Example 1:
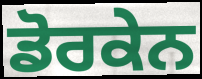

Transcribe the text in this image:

ਡੋਰਕੇਨ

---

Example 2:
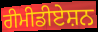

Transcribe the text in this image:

ਰੀਮੀਡੀਏਸ਼ਨ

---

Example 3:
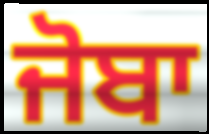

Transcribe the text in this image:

ਜੋਬਾ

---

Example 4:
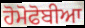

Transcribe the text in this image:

ਹੋਮੋਫੋਬੀਆ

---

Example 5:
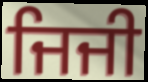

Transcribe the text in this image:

ਜਿਜੀ